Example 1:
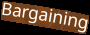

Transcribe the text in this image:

Bargaining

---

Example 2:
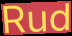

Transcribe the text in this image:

Rud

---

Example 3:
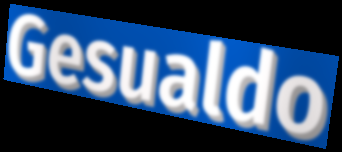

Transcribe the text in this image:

Gesualdo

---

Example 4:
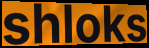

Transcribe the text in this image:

shloks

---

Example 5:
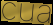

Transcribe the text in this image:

cua